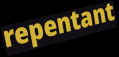
repentant